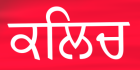
ਕਲਿਚ